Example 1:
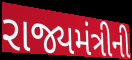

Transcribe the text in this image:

રાજ્યમંત્રીની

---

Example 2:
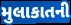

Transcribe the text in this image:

મુલાકાતની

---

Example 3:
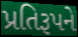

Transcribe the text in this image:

પ્રતિરૂપને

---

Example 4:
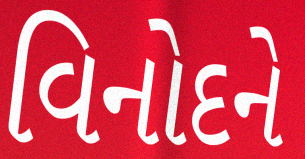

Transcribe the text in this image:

વિનોદને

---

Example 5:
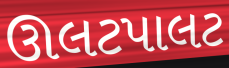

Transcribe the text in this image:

ઊલટપાલટ